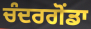
ਚੰਦਰਗੋਂਡਾ